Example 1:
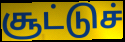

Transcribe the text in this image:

சூட்டுச்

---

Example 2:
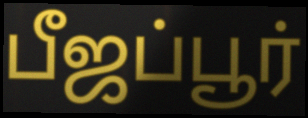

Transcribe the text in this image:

பீஜப்பூர்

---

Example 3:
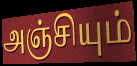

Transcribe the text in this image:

அஞ்சியும்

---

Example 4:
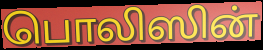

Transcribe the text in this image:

பொலிஸின்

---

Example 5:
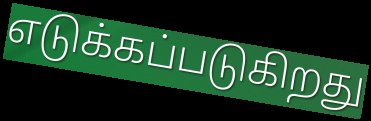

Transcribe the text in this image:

எடுக்கப்படுகிறது